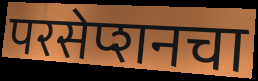
परसेप्शनचा